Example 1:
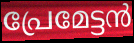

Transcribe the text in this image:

പ്രേമേട്ടൻ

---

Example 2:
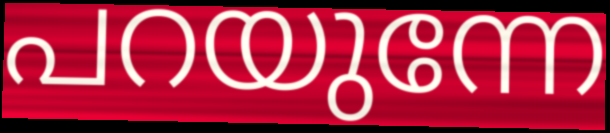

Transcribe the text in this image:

പറയുന്നേ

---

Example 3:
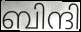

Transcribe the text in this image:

ബിന്ദി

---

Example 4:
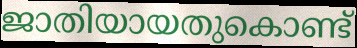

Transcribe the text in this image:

ജാതിയായതുകൊണ്ട്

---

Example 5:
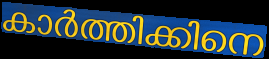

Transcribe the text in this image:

കാർത്തിക്കിനെ